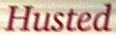
Husted